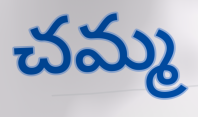
చమ్మ